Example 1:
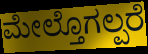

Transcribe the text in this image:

ಮೇಲ್ತೊಗಲ್ಪರೆ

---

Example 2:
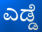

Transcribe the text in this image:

ಎಡ್ಡೆ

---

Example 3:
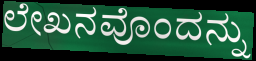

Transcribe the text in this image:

ಲೇಖನವೊಂದನ್ನು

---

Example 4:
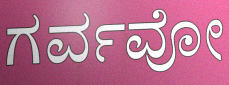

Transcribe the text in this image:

ಗರ್ವವೋ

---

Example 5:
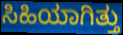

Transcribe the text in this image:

ಸಿಹಿಯಾಗಿತ್ತು